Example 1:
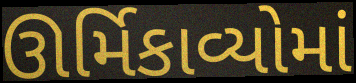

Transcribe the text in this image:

ઊર્મિકાવ્યોમાં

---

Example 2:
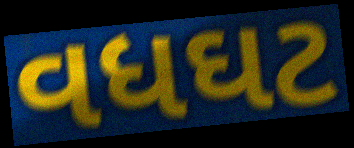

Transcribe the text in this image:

વધઘટ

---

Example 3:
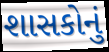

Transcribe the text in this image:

શાસકોનું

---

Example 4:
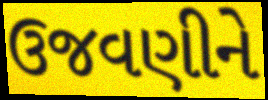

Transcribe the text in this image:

ઉજવણીને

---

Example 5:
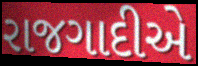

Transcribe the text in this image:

રાજગાદીએ